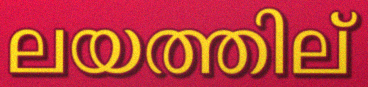
ലയത്തില്